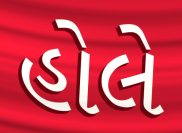
હોલે